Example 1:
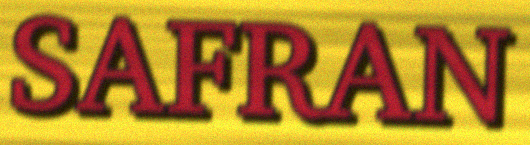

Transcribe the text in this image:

SAFRAN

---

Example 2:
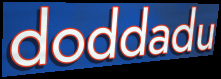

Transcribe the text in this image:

doddadu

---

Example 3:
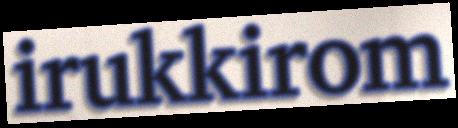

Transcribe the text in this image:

irukkirom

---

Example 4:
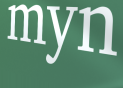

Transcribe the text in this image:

myn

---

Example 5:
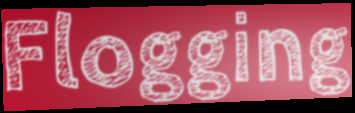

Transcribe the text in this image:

Flogging